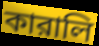
কারালি